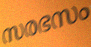
സരഭസം